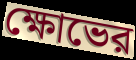
ক্ষোভের